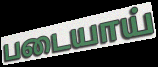
படையாய்